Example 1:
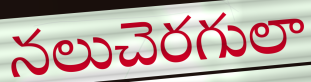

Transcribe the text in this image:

నలుచెరగులా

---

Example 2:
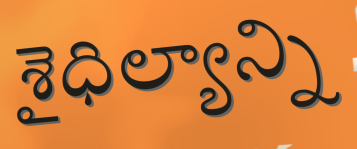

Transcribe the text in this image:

శైధిల్యాన్ని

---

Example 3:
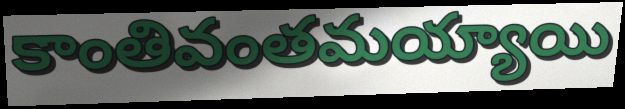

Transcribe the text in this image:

కాంతివంతమయ్యాయి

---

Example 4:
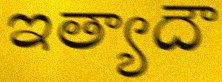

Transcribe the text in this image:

ఇత్యాదౌ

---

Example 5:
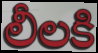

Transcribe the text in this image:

లీలకి